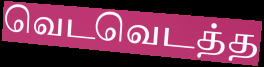
வெடவெடத்த